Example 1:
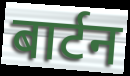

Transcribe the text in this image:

बार्टन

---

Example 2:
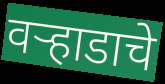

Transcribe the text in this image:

वऱ्हाडाचे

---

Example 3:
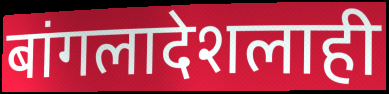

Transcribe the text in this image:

बांगलादेशलाही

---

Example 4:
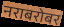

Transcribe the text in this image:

नराबरोबर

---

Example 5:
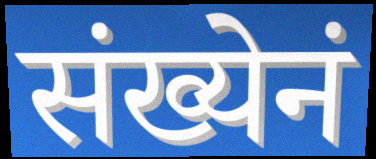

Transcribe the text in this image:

संख्येनं